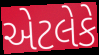
એટલેકે